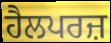
ਹੈਲਪਰਜ਼